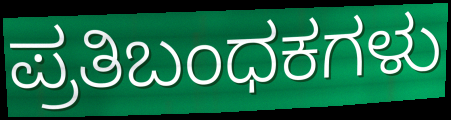
ಪ್ರತಿಬಂಧಕಗಳು